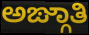
ಅಙ್ಗಾತಿ